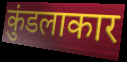
कुंडलाकार